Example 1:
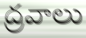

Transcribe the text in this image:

ద్రవాలు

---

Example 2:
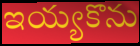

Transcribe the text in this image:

ఇయ్యకొను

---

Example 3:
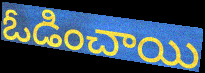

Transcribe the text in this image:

ఓడించాయి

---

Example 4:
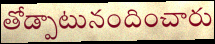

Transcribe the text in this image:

తోడ్పాటునందించారు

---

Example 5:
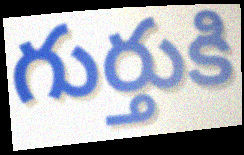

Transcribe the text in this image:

గుర్తుకి